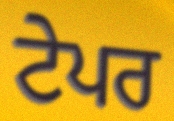
ਟੇਪਰ